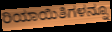
ರಿಯಾಯಿತಿಗಳನ್ನೂ